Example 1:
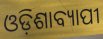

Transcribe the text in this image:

ଓଡ଼ିଶାବ୍ୟାପୀ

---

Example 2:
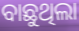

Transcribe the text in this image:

ବାଛୁଥିଲା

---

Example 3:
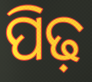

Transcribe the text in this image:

ପିଢ଼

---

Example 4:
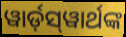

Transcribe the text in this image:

ୱାର୍ଡ଼ସ୍‌ୱାର୍ଥଙ୍କ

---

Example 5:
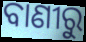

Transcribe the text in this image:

ବାଣୀରୁ